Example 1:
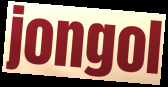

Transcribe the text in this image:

jongol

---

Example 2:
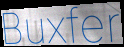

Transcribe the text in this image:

Buxfer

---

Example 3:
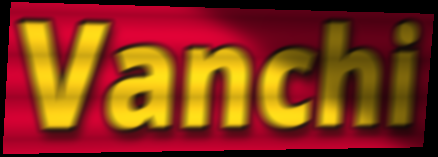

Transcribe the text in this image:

Vanchi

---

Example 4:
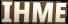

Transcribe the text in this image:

IHME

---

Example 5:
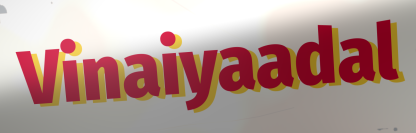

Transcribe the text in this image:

Vinaiyaadal